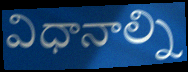
విధానాల్ని